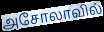
அசோலாவில்